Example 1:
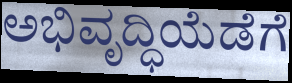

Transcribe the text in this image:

ಅಭಿವೃದ್ಧಿಯೆಡೆಗೆ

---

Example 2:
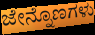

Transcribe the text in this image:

ಜೇನ್ನೊಣಗಳು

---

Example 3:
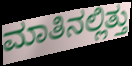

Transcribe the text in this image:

ಮಾತಿನಲ್ಲಿತ್ತು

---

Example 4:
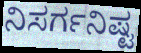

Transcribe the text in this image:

ನಿಸರ್ಗನಿಷ್ಟ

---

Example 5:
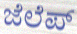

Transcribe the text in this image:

ಜೆಲೆಪ್